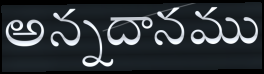
అన్నదానము